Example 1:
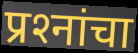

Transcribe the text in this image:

प्रश्नांचा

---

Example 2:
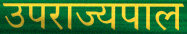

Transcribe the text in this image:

उपराज्यपाल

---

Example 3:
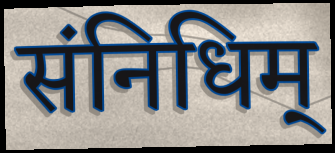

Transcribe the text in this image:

संनिधिम्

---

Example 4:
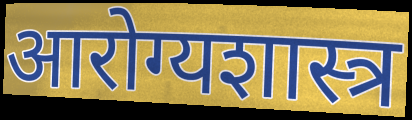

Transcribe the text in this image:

आरोग्यशास्त्र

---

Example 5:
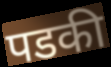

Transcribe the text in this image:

पडकी